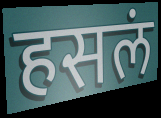
हसलं